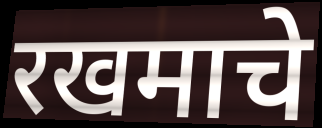
रखमाचे